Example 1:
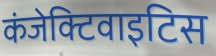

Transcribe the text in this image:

कंजेक्टिवाइटिस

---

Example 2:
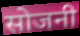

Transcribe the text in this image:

सोजनी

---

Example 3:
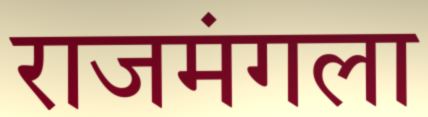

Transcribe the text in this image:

राजमंगला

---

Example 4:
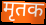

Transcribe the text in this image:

मृतक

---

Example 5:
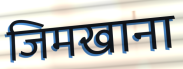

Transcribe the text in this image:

जिमखाना